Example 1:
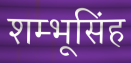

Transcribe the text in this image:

शम्भूसिंह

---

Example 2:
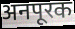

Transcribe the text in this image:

अनपूरक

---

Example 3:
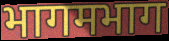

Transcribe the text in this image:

भागमभाग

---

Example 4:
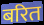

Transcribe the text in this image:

बरित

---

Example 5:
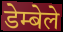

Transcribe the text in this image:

डेम्बेले